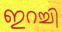
ഇറച്ചി